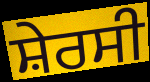
ਸ਼ੇਰਸੀ